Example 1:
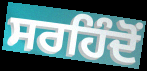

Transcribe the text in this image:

ਸਰਹਿੰਦੋਂ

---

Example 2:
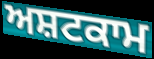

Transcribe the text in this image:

ਅਸ਼ਟਕਾਮ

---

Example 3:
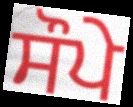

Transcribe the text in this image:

ਸੌਪੇ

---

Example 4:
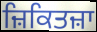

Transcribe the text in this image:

ਜ਼ਿਕਿਤਜ਼ਾ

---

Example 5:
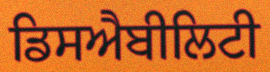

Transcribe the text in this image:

ਡਿਸਐਬੀਲਿਟੀ